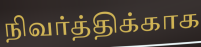
நிவர்த்திக்காக